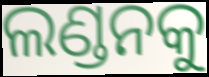
ଲଣ୍ଡନକୁ